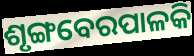
ଶୃଙ୍ଗବେରପାଳକି